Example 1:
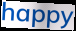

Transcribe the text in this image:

happy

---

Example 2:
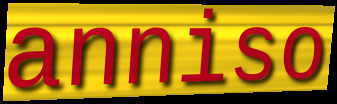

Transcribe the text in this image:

anniso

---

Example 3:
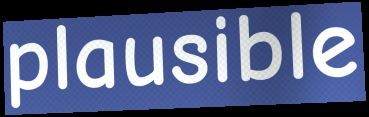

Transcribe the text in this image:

plausible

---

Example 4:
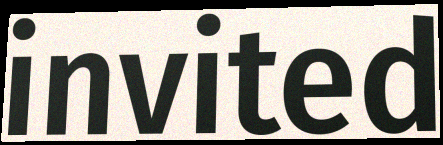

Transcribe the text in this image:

invited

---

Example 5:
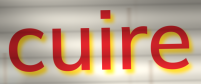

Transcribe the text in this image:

cuire